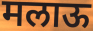
मलाऊ